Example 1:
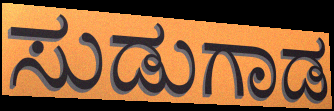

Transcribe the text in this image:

ಸುಡುಗಾಡ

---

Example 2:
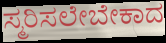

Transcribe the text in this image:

ಸ್ಮರಿಸಲೇಬೇಕಾದ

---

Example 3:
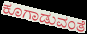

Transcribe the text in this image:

ಕೂಗಾಡುವಂತೆ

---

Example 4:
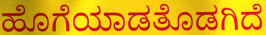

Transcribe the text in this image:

ಹೊಗೆಯಾಡತೊಡಗಿದೆ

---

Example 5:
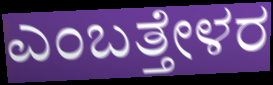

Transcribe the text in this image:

ಎಂಬತ್ತೇಳರ